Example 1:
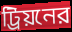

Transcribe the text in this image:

ট্রিয়নের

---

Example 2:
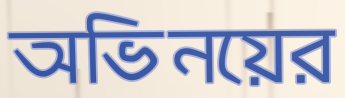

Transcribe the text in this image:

অভিনয়ের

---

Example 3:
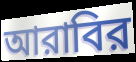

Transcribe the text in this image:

আরাবির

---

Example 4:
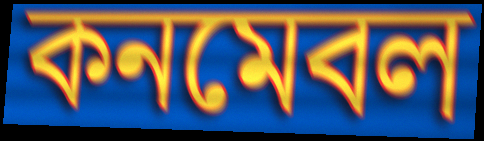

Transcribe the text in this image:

কনমেবল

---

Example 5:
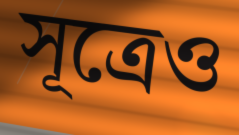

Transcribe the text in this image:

সূত্রেও